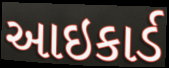
આઇકાર્ડ